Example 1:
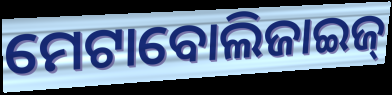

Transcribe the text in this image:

ମେଟାବୋଲିଜାଇଜ୍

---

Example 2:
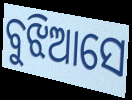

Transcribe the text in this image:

ବୁଝିଆସେ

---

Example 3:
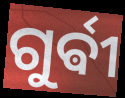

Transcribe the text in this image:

ଗୁର୍ଵୀ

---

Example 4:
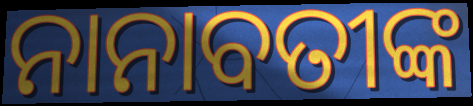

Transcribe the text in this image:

ନାନାବତୀଙ୍କ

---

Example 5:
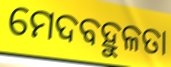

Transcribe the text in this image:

ମେଦବହୁଳତା